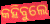
କହିବୁଲେ